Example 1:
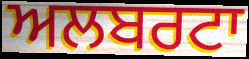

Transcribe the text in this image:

ਅਲਬਰਟਾ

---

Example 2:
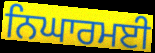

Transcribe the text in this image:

ਨਿਘਾਰਮਈ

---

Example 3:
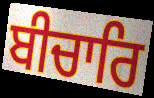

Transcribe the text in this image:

ਬੀਚਾਰਿ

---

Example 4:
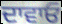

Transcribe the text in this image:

ਦਾਵਾਓ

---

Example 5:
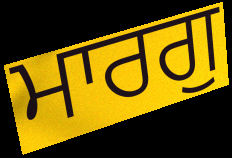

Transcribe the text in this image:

ਮਾਰਗੁ